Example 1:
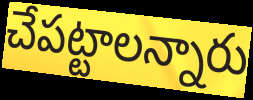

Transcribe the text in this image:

చేపట్టాలన్నారు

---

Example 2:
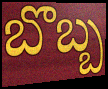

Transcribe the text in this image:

బొబ్బ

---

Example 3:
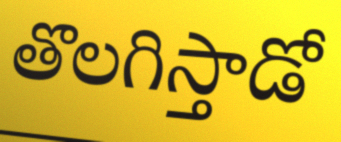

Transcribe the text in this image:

తొలగిస్తాడో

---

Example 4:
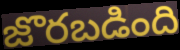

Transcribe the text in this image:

జొరబడింది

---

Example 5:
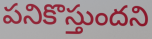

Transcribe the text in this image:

పనికొస్తుందని